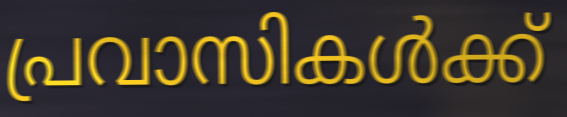
പ്രവാസികൾക്ക്